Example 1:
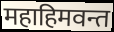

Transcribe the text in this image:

महाहिमवन्त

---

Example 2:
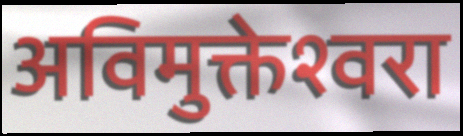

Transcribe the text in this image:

अविमुक्तेश्वरा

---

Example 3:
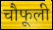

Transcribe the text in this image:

चौफूली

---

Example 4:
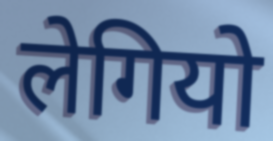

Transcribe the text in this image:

लेगियो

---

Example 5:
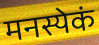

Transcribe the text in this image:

मनस्येकं